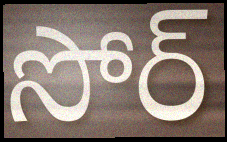
సోర్